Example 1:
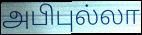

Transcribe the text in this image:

அபிபுல்லா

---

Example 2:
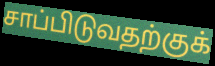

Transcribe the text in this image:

சாப்பிடுவதற்குக்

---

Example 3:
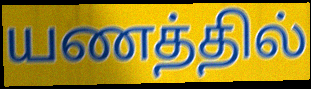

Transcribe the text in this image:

யணத்தில்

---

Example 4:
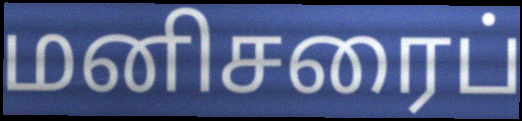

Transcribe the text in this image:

மனிசரைப்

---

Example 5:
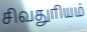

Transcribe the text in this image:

சிவதுரியம்